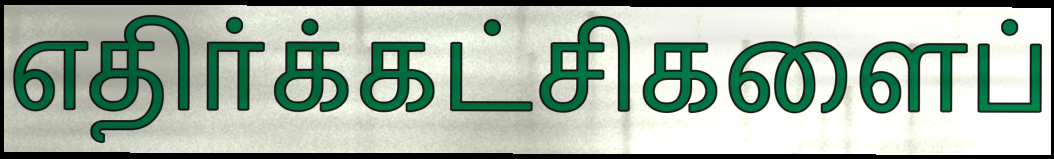
எதிர்க்கட்சிகளைப்